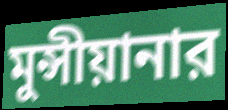
মুন্সীয়ানার